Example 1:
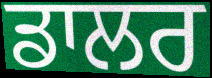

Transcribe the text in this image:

ਡਾਲਰ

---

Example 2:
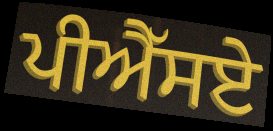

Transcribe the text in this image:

ਪੀਐੱਸਏ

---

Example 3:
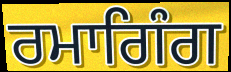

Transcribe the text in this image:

ਰਮਾਗਿੰਗ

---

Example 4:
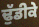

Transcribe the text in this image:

ਢੁੱਡੀਕੇ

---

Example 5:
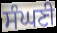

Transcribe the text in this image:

ਸੰਘਣੀ